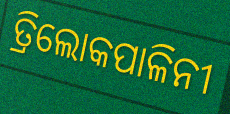
ତ୍ରିଲୋକପାଳିନୀ